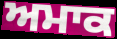
ਅਮਾਕ